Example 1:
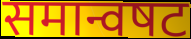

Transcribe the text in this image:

समान्वषट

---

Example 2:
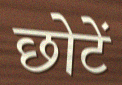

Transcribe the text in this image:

छोटें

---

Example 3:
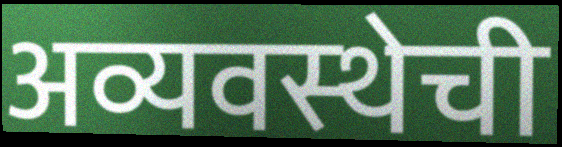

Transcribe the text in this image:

अव्यवस्थेची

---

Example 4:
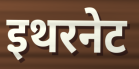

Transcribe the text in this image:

इथरनेट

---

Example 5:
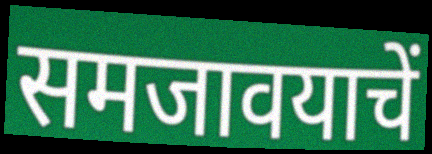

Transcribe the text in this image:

समजावयाचें